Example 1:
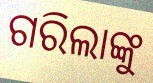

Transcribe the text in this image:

ଗରିଲାଙ୍କୁ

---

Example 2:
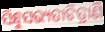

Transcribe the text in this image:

ସିନ୍ଧୁସଭ୍ୟତାଚିତ୍ରାଣି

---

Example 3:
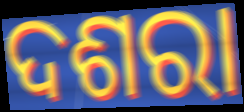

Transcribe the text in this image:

ଦଶରା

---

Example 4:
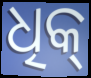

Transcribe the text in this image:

ଧିକ୍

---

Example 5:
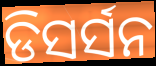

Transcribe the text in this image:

ଡିସର୍ସନ